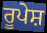
ਰੂਪੇਸ਼